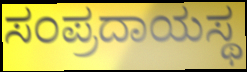
ಸಂಪ್ರದಾಯಸ್ಥ